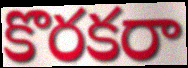
కొరకరా